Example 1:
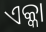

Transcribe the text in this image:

ଏକ୍କା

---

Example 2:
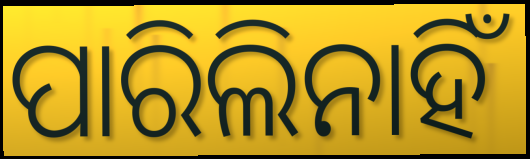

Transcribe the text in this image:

ପାରିଲିନାହିଁ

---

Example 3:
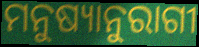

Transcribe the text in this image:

ମନୁଷ୍ୟାନୁରାଗୀ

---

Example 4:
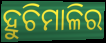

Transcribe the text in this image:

ହୁଚିମାଳିର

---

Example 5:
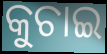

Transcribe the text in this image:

କୁଚାଇ